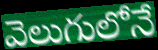
వెలుగులోనే